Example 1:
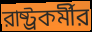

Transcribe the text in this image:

রাষ্ট্রকর্মীর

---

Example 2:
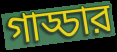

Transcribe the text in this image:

গাড্ডার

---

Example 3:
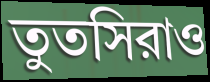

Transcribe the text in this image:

তুতসিরাও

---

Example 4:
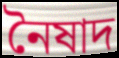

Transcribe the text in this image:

নৈষাদ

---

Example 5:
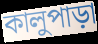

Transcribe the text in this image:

কালুপাড়া